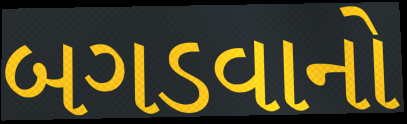
બગડવાનો